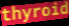
thyroid